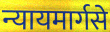
न्यायमार्गसे